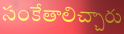
సంకేతాలిచ్చారు